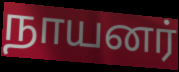
நாயனர்